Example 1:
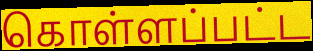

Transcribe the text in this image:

கொள்ளப்பட்ட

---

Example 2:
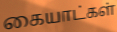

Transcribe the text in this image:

கையாட்கள்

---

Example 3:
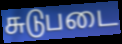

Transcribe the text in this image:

சுடுபடை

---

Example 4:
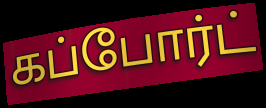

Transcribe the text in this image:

கப்போர்ட்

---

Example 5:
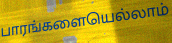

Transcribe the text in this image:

பாரங்களையெல்லாம்